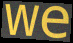
we